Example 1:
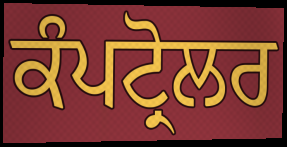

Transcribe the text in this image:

ਕੰਪਟ੍ਰੋਲਰ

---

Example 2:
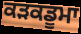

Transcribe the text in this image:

ਕੜਕਡੂਮਾ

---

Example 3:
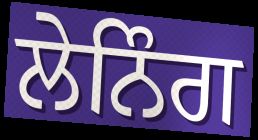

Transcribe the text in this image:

ਲੇਨਿੰਗ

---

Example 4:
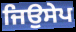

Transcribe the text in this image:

ਜਿਉਸੇਪ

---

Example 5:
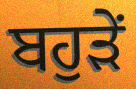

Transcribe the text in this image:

ਬਹੁੜੇਂ